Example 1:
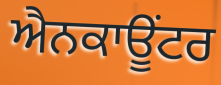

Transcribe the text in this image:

ਐਨਕਾਊਂਟਰ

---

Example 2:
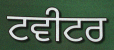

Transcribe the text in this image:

ਟਵੀਟਰ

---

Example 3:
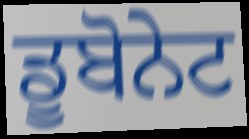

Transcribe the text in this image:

ਡੂਬੋਨੇਟ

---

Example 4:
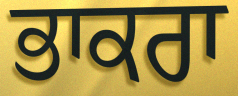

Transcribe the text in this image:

ਭਾਕਰਾ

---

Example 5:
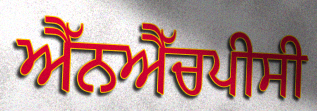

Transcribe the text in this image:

ਐੱਨਐੱਚਪੀਸੀ